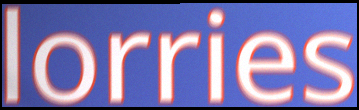
lorries